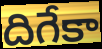
దిగేకా